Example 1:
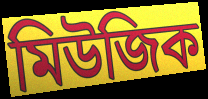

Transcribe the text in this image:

মিউজিক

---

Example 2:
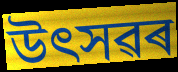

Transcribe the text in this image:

উৎসৱৰ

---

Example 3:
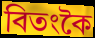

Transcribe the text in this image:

বিতংকৈ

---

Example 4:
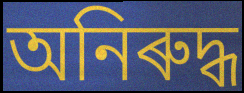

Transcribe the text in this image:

অনিৰুদ্ধ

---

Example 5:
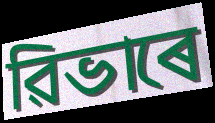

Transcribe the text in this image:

ৱিভাৰে